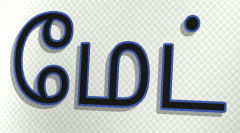
மேட்